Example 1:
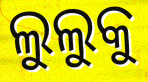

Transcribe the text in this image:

ଲୁଲୁକୁ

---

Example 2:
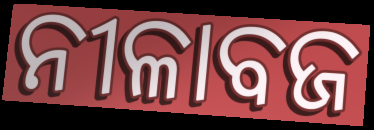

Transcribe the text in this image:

ନୀଳାବଜ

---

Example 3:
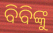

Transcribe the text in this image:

ବିବିଙ୍କୁ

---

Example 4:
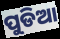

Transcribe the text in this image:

ପୁଡିଆ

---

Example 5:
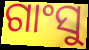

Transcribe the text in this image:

ଗାଂସୁ